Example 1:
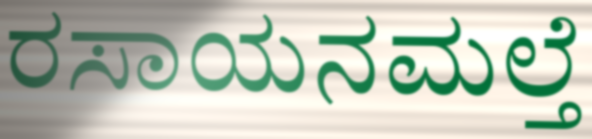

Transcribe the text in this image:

ರಸಾಯನಮಲ್ತೆ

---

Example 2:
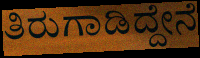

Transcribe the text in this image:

ತಿರುಗಾಡಿದ್ದೇನೆ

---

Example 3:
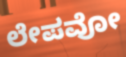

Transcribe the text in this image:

ಲೇಪವೋ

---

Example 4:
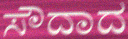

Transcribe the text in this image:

ಸೌದಾದ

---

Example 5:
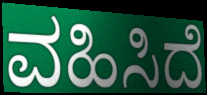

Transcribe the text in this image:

ವಹಿಸಿದೆ